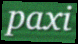
paxi